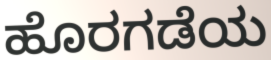
ಹೊರಗಡೆಯ